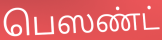
பெஸண்ட்